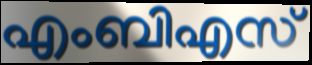
എംബിഎസ്